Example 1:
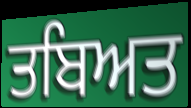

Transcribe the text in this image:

ਤਬਿਅਤ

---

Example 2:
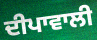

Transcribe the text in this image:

ਦੀਪਾਵਾਲੀ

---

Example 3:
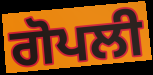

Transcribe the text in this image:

ਗੋਪਲੀ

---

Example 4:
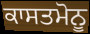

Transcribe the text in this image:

ਕਾਸਤਮੋਨੂ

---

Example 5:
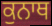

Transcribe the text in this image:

ਕੁਨਾਥ